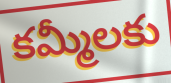
కమ్మీలకు